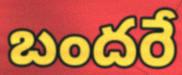
బందరే